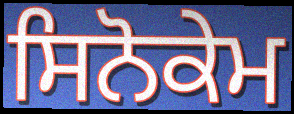
ਸਿਨੋਕੇਮ